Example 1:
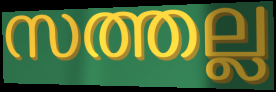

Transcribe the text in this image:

സത്തല്ല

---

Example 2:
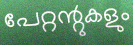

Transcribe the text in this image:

പേറ്റന്റുകളും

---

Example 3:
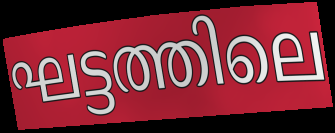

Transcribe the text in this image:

ഘട്ടത്തിലെ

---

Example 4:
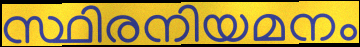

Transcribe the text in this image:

സ്ഥിരനിയമനം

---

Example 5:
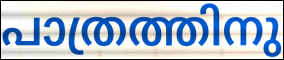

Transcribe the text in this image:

പാത്രത്തിനു